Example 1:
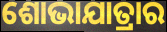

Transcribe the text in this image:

ଶୋଭାଯାତ୍ରାର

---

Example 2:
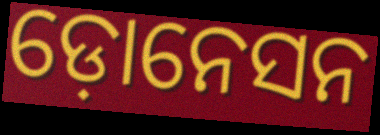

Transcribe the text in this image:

ଡ଼ୋନେସନ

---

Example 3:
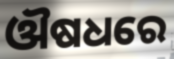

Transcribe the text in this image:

ଔଷଧରେ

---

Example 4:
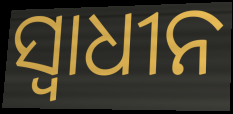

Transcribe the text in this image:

ସ୍ୱାଧୀନ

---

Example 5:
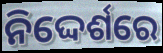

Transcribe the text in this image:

ନିଦ୍ଦେର୍ଶରେ